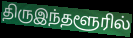
திருஇந்தளூரில்